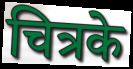
चित्रके